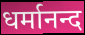
धर्मानन्द